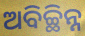
ଅବିଚ୍ଛିନ୍ନ